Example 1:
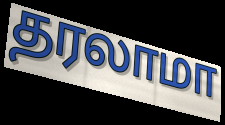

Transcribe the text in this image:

தரலாமா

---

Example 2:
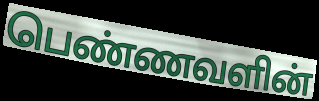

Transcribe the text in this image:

பெண்ணவளின்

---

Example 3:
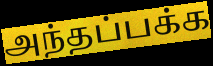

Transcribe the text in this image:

அந்தப்பக்க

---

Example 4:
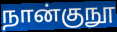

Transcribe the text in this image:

நான்குநூ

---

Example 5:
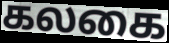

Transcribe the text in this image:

கலகை